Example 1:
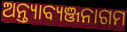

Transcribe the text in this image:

ଅନ୍ତ୍ୟାବ୍ୟଞ୍ଜନାଗମ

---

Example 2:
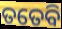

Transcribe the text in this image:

ତତେବି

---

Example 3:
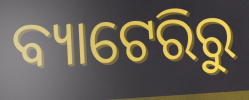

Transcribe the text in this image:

ବ୍ୟାଟେରିରୁ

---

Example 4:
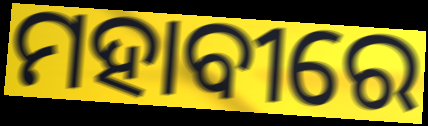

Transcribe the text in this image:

ମହାବୀରେ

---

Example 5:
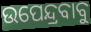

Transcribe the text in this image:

ଉପେନ୍ଦ୍ରବାବୁ